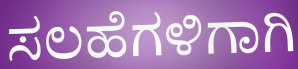
ಸಲಹೆಗಳಿಗಾಗಿ